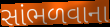
સાંભળવાના